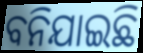
ବନିଯାଇଛି